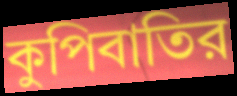
কুপিবাতির